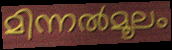
മിന്നൽമൂലം